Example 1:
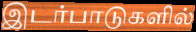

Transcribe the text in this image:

இடர்பாடுகளில்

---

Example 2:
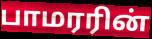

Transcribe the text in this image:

பாமரரின்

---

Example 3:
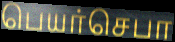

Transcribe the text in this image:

பெயர்செபா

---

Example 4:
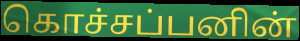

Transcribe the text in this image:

கொச்சப்பனின்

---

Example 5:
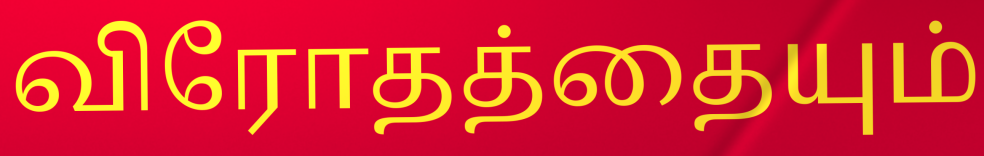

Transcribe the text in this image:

விரோதத்தையும்